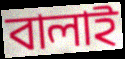
বালাই